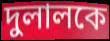
দুলালকে